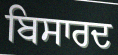
ਬਿਸਾਰਦ